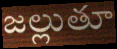
జల్లుతూ